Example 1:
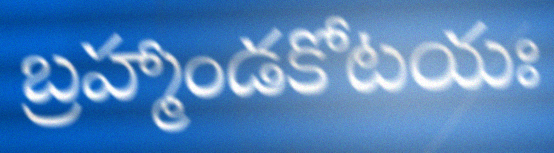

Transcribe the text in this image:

బ్రహ్మాండకోటయః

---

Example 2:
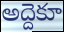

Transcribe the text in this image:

అద్దెకూ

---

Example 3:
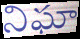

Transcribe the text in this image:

నిఘా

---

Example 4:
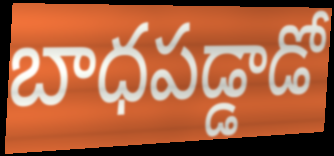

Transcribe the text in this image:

బాధపడ్డాడో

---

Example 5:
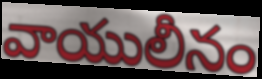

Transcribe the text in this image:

వాయులీనం